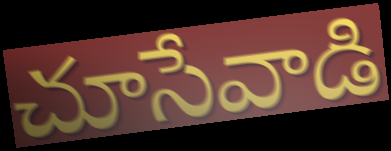
చూసేవాడి